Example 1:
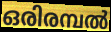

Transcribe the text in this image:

ഒരിരമ്പൽ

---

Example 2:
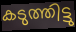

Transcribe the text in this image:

കടുത്തിട്ടു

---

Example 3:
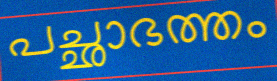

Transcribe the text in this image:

പച്ഛാഭത്തം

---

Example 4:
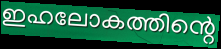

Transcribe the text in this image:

ഇഹലോകത്തിന്റെ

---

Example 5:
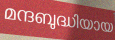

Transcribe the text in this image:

മന്ദബുദ്ധിയായ